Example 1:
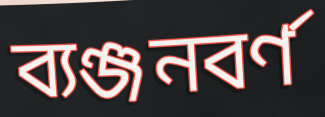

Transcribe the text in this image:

ব্যঞ্জনবৰ্ণ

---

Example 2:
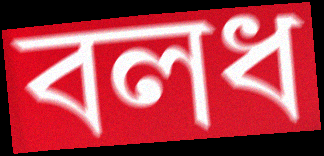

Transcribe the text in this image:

বলধ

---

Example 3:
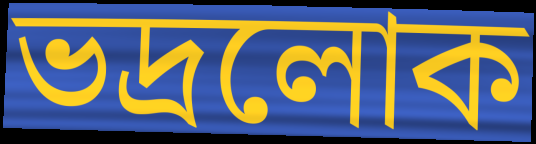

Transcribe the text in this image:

ভদ্ৰলোক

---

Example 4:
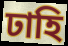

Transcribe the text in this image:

ঢাহি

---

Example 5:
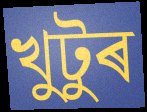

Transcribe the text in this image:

খুটুৰ